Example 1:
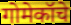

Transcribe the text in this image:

गोमेकॉचे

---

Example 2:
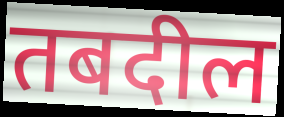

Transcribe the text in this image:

तबदील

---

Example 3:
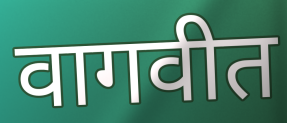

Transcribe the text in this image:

वागवीत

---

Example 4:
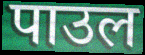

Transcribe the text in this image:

पाउल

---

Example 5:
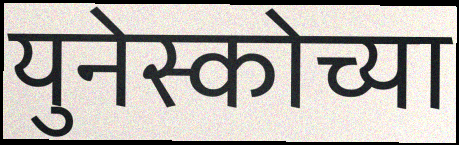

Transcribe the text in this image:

युनेस्कोच्या